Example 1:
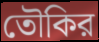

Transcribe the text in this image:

তৌকির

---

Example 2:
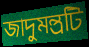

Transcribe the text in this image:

জাদুমন্ত্রটি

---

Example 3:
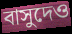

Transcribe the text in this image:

বাসুদেও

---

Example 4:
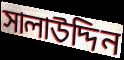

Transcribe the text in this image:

সালাউদ্দিন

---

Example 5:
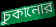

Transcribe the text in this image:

চুকানোর